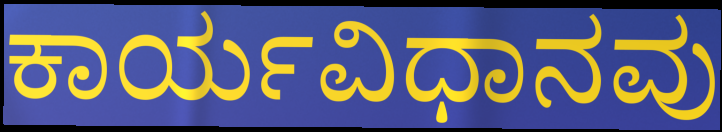
ಕಾರ್ಯವಿಧಾನವು